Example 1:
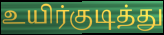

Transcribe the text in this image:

உயிர்குடித்து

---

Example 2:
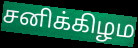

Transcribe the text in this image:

சனிக்கிழம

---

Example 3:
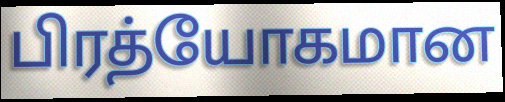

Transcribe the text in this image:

பிரத்யோகமான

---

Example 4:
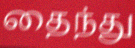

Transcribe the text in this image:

தைந்து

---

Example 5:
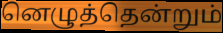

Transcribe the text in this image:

னெழுத்தென்றும்